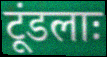
टूंडलाः